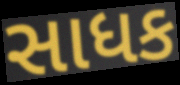
સાધક